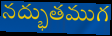
నద్భుతముగ